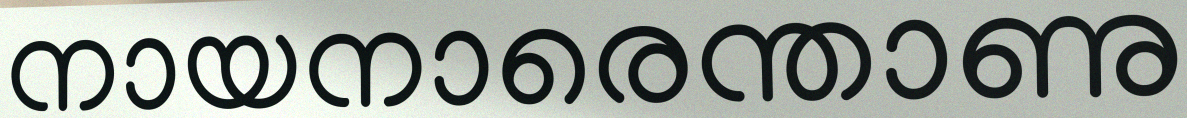
നായനാരെന്താണു